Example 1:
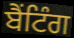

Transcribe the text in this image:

ਬੈਂਟਿੰਗ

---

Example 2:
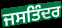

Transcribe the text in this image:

ਜਸਤਿੰਦਰ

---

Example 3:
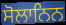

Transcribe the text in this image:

ਸੋਲਾਨਿਨ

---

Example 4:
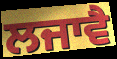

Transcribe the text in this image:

ਲਜਾਵੈ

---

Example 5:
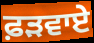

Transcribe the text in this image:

ਫ਼ੜਵਾਏ